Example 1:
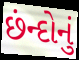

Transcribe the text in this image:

છંન્દોનું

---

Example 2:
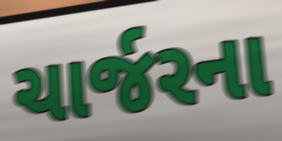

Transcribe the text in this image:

ચાર્જરના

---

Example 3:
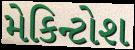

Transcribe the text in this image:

મેકિન્ટોશ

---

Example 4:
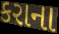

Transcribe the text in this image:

કરાના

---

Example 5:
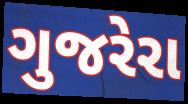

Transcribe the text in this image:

ગુજરેરા